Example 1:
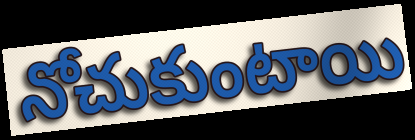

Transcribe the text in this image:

నోచుకుంటాయి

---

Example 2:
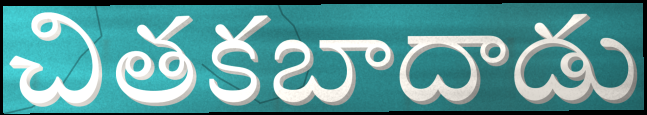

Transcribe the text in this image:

చితకబాదాడు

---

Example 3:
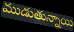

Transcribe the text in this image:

ముడుతున్నాయి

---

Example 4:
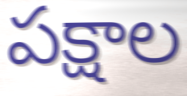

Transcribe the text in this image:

పక్షాల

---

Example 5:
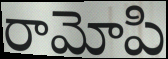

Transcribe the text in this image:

రామోపి